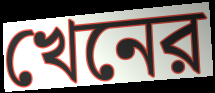
খেনের